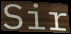
Sir